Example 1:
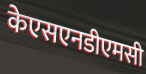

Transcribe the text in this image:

केएसएनडीएमसी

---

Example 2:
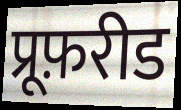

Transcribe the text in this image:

प्रूफ़रीड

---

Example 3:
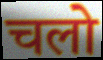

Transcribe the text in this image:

चलो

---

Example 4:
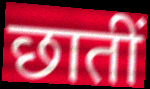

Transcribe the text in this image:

छातीं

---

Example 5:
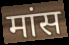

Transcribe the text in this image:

मांस